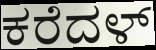
ಕರೆದಳ್